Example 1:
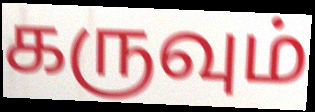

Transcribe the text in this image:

கருவும்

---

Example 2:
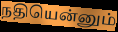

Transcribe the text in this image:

நதியென்னும்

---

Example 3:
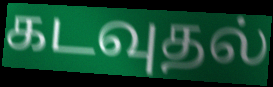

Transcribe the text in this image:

கடவுதல்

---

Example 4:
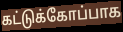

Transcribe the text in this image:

கட்டுக்கோப்பாக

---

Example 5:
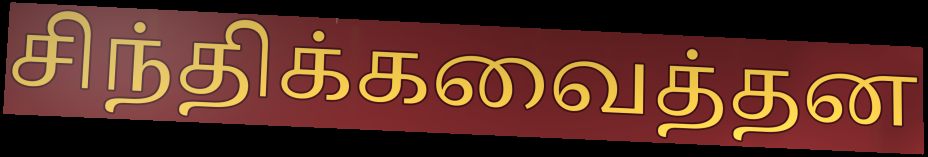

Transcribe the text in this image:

சிந்திக்கவைத்தன